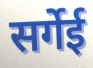
सर्गेई